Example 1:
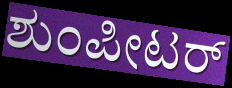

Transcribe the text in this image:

ಶುಂಪೀಟರ್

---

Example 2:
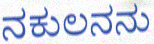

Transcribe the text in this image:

ನಕುಲನನು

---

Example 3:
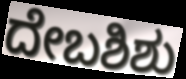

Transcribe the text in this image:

ದೇಬಶಿಶು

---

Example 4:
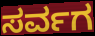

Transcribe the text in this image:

ಸರ್ವಗ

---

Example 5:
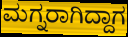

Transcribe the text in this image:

ಮಗ್ನರಾಗಿದ್ದಾಗ